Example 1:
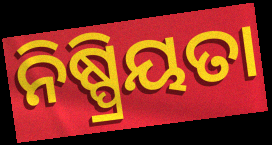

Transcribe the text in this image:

ନିଷ୍ପ୍ରିୟତା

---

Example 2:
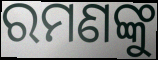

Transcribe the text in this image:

ରମଣଙ୍କୁ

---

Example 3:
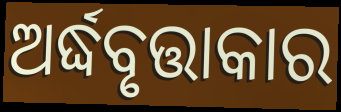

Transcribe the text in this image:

ଅର୍ଦ୍ଧବୃତ୍ତାକାର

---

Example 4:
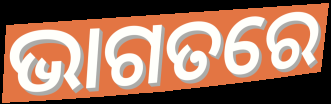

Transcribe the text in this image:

ଭାଗତରେ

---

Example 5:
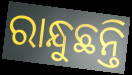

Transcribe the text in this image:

ରାନ୍ଧୁଛନ୍ତି